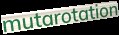
mutarotation